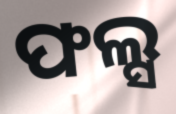
ଫଲ୍ସ